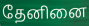
தேனினை